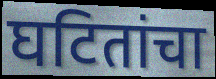
घटितांचा